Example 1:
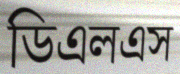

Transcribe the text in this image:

ডিএলএস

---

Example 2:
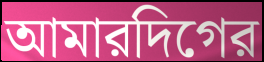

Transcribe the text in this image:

আমারদিগের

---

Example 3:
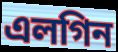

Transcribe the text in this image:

এলগিন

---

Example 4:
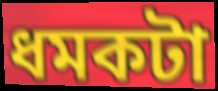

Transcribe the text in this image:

ধমকটা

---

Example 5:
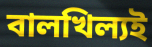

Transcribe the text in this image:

বালখিল্যই